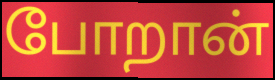
போறான்